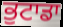
ਭੁਟਾਡਾ